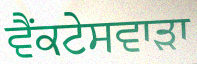
ਵੈਂਕਟੇਸਵਾੜਾ